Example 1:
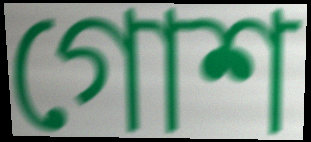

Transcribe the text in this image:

গোশ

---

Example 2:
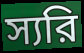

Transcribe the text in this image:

স্যরি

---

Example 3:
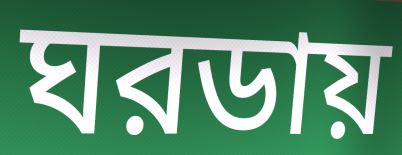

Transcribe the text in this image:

ঘরডায়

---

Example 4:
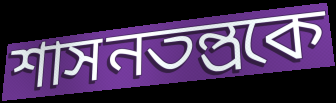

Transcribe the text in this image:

শাসনতন্ত্রকে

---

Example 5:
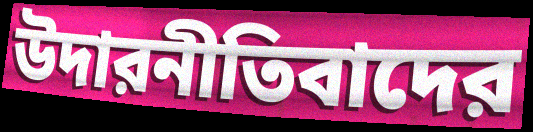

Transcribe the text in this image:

উদারনীতিবাদের